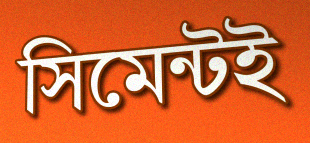
সিমেন্টই